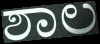
ಶಾಲ